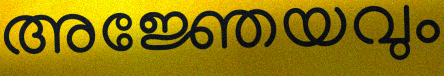
അജ്ഞേയവും